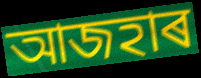
আজহাৰ